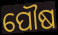
ପୌଷ